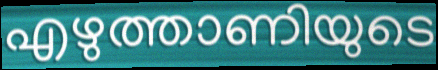
എഴുത്താണിയുടെ